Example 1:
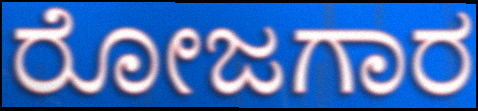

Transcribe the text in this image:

ರೋಜಗಾರ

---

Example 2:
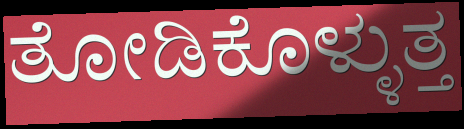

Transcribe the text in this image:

ತೋಡಿಕೊಳ್ಳುತ್ತ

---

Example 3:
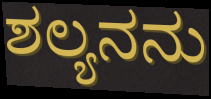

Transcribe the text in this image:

ಶಲ್ಯನನು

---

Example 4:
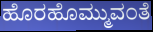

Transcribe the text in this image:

ಹೊರಹೊಮ್ಮುವಂತೆ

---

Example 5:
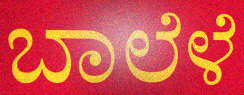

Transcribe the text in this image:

ಬಾಲೆಳೆ